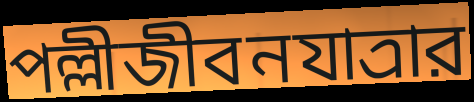
পল্লীজীবনযাত্রার